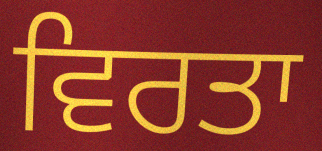
ਵਿਰਤਾ